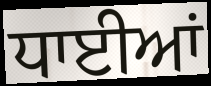
ਧਾਈਆਂ